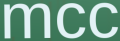
mcc